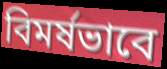
বিমর্ষভাবে